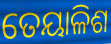
ତେୟାଳିଶ